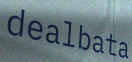
dealbata